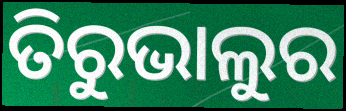
ତିରୁଭାଲୁର